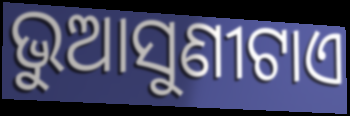
ଭୁଆସୁଣୀଟାଏ